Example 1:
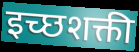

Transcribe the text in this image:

इच्छशक्ती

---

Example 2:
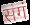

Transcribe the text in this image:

संगं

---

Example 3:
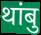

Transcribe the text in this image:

थांबु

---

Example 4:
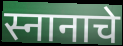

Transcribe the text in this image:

स्नानाचे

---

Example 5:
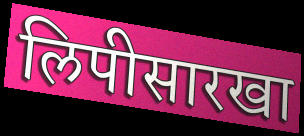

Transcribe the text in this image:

लिपीसारखा